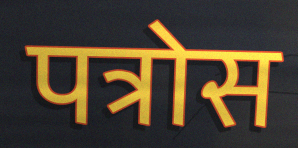
पत्रोस